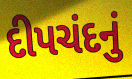
દીપચંદનું